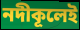
নদীকূলেই